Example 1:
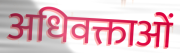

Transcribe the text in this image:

अधिवक्ताओं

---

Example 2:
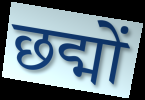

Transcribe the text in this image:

छद्मों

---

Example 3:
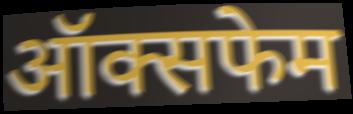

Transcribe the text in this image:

ऑक्सफेम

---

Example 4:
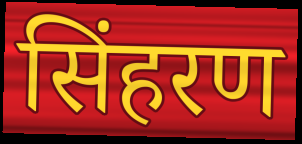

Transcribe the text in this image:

सिंहरण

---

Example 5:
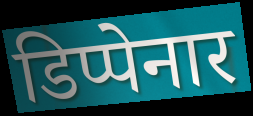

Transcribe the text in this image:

डिप्पेनार